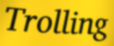
Trolling